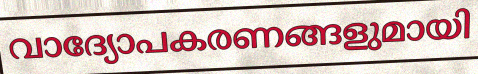
വാദ്യോപകരണങ്ങളുമായി